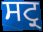
ਸਟ੍ਰ